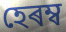
হেৰম্ব